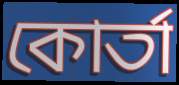
কোর্তা